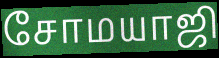
சோமயாஜி